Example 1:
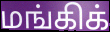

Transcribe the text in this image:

மங்கிக்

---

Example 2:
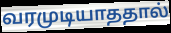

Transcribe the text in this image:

வரமுடியாததால்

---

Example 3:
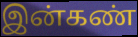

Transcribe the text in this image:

இன்கண்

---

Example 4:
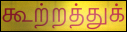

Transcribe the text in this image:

கூற்றத்துக்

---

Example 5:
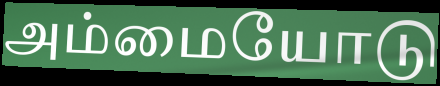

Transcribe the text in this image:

அம்மையோடு